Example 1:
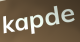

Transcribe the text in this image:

kapde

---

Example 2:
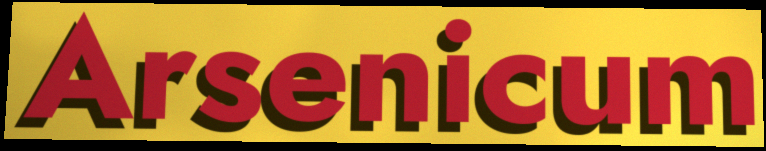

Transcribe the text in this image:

Arsenicum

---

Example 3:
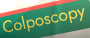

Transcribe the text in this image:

Colposcopy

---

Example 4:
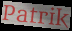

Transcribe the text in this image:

Patrik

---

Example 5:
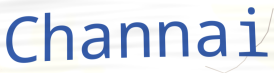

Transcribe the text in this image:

Channai